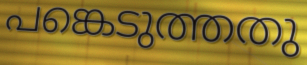
പങ്കെടുത്തതു